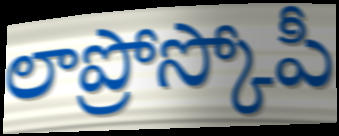
లాప్రోస్కోపీ